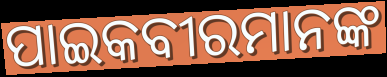
ପାଇକବୀରମାନଙ୍କ